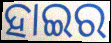
ହାଇର